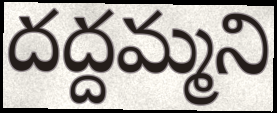
దద్దమ్మని